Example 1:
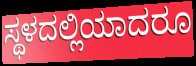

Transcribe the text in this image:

ಸ್ಥಳದಲ್ಲಿಯಾದರೂ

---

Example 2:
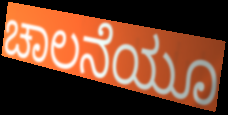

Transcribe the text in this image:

ಚಾಲನೆಯೂ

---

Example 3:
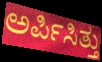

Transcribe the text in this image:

ಅರ್ಪಿಸಿತ್ತು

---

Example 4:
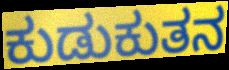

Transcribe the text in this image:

ಕುಡುಕುತನ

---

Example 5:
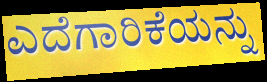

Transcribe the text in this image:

ಎದೆಗಾರಿಕೆಯನ್ನು